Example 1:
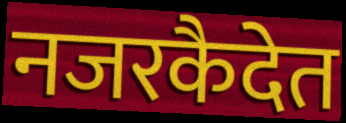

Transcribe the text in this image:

नजरकैदेत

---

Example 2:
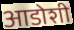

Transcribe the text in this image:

आडोशी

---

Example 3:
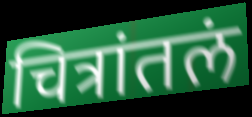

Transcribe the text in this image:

चित्रांतलं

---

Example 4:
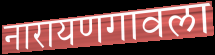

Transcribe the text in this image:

नारायणगावला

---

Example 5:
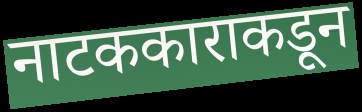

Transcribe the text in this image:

नाटककाराकडून